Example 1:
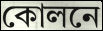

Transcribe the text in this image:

কোলনে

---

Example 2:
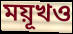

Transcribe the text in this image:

ময়ূখও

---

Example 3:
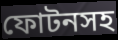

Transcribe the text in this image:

ফোটনসহ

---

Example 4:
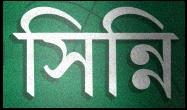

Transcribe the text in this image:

সিন্নি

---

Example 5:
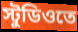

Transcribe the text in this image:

স্টুডিওতে